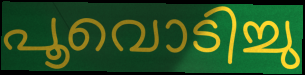
പൂവൊടിച്ചു